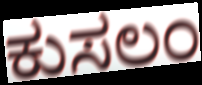
ಕುಸಲಂ